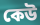
কেউ